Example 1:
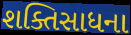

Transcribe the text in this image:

શક્તિસાધના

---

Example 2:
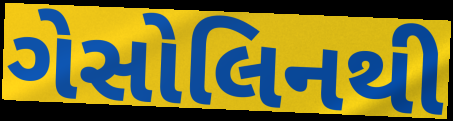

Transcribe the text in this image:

ગેસોલિનથી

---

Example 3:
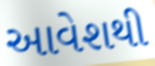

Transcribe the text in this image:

આવેશથી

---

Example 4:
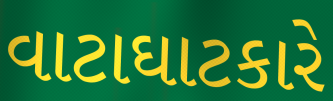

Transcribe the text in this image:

વાટાઘાટકારે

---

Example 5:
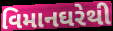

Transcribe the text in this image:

વિમાનઘરેથી